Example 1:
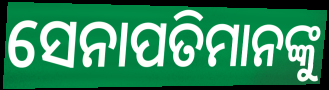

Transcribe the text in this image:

ସେନାପତିମାନଙ୍କୁ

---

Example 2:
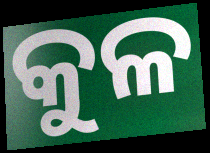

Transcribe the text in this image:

କୁଳ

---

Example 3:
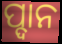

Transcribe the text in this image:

ପ୍ଦାନ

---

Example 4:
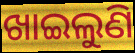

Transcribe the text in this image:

ଖାଇଲୁଣି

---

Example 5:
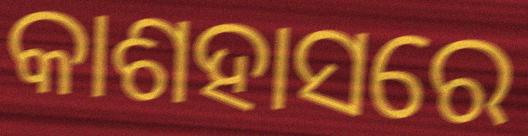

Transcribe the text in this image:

କାଶହାସରେ